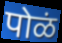
पोळं